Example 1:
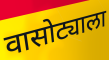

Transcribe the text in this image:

वासोट्याला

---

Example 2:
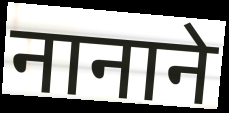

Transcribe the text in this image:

नानाने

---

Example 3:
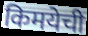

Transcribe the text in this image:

किमयेची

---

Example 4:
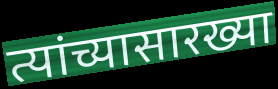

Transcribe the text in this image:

त्यांच्यासारख्या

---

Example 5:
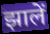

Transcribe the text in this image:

झालें